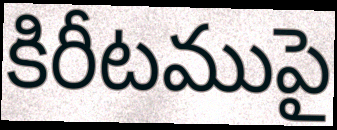
కిరీటముపై